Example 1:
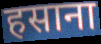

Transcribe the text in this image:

हसाना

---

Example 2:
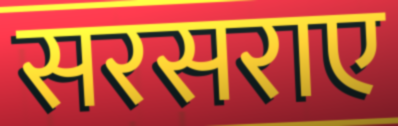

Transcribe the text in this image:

सरसराए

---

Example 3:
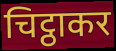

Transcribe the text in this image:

चिट्ठाकर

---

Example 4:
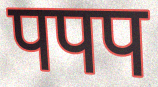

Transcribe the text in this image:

पपप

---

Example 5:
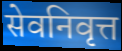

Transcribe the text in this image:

सेवनिवृत्त